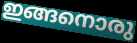
ഇങ്ങനൊരു